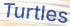
Turtles